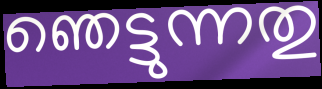
ഞെട്ടുന്നതു